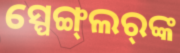
ସ୍ପେଙ୍ଗ୍‌ଲର୍‌ଙ୍କ